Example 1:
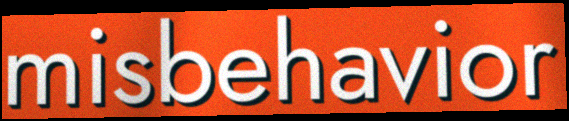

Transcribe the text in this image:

misbehavior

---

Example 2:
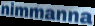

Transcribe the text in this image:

nimmanna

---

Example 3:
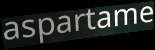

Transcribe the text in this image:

aspartame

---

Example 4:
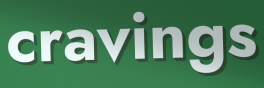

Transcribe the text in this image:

cravings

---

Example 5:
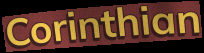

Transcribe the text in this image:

Corinthian